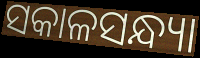
ସକାଳସନ୍ଧ୍ୟା